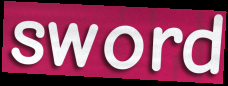
sword